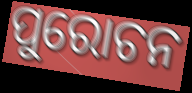
ପୁରୋଚନ